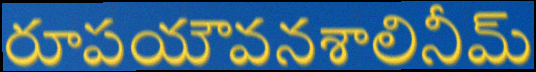
రూపయౌవనశాలినీమ్